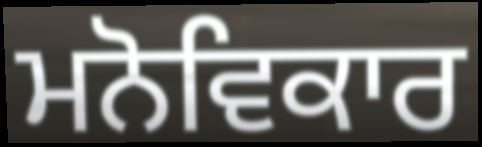
ਮਨੋਵਿਕਾਰ